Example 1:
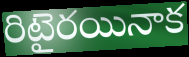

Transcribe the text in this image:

రిటైరయినాక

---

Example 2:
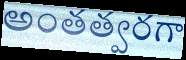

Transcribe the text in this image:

అంతత్వరగా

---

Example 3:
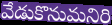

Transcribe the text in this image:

వేడుకొనుమనిరి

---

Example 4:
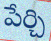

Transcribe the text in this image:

పేర్చి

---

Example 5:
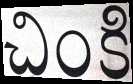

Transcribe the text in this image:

చింకి